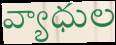
వ్యాధుల